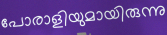
പോരാളിയുമായിരുന്നു